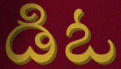
డిఓ